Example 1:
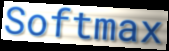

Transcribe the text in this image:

Softmax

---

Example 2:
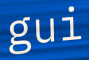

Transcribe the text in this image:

gui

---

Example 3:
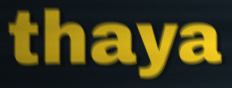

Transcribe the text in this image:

thaya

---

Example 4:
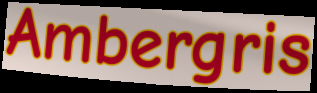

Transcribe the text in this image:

Ambergris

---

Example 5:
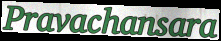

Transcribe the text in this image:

Pravachansara